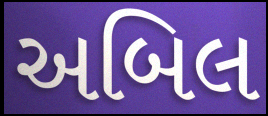
અબિલ